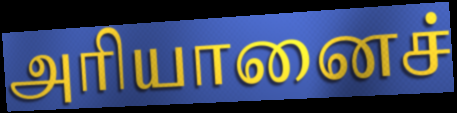
அரியானைச்